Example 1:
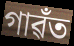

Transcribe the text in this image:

গাৱঁত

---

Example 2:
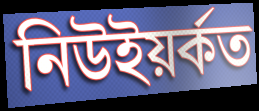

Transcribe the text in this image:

নিউইয়ৰ্কত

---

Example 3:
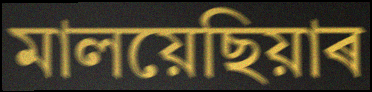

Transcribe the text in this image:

মালয়েছিয়াৰ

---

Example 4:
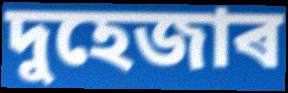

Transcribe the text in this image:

দুহেজাৰ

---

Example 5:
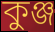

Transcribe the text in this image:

কুঞ্জ